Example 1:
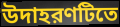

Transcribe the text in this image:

উদাহরণটিতে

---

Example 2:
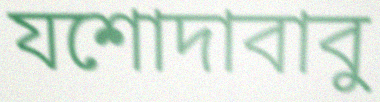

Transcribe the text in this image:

যশোদাবাবু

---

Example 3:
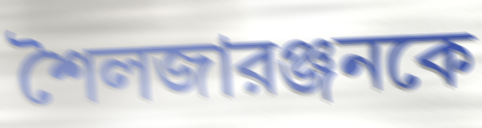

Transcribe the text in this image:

শৈলজারঞ্জনকে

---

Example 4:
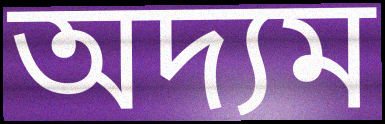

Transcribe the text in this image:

অদ্যম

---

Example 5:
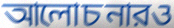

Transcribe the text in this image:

আলোচনারও